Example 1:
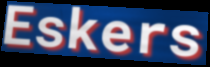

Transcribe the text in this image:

Eskers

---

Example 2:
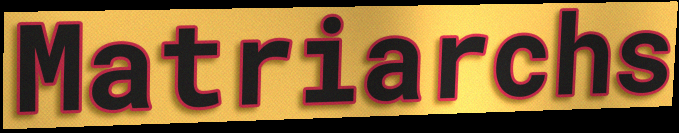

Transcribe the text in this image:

Matriarchs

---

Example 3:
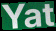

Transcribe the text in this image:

Yat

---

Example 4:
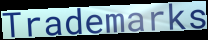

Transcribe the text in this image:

Trademarks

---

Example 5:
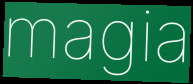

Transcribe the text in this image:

magia